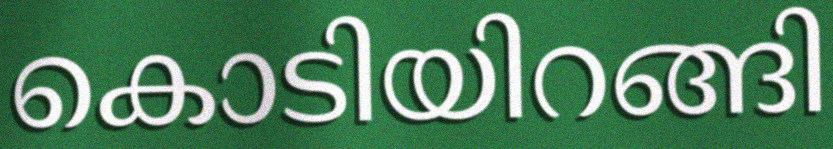
കൊടിയിറങ്ങി